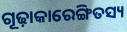
ଗୂଢ଼ାକାରେଙ୍ଗିତସ୍ୟ